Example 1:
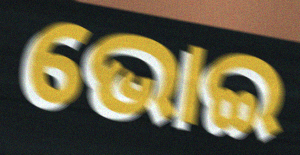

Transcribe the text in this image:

ଭୋଇ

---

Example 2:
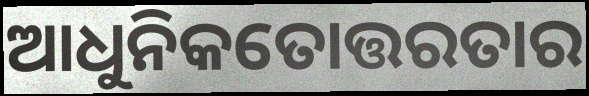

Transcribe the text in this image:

ଆଧୁନିକତୋତ୍ତରତାର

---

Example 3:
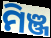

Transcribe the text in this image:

ମିଞ୍ଜ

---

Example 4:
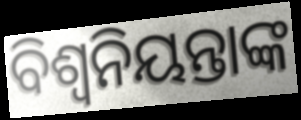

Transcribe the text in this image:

ବିଶ୍ବନିୟନ୍ତାଙ୍କ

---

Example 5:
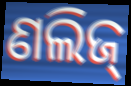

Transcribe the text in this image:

ଣଲିଜ୍